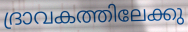
ദ്രാവകത്തിലേക്കു